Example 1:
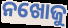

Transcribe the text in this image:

ନଖୋଜୁ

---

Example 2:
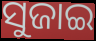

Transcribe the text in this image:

ସୁଜାଇ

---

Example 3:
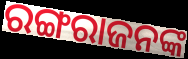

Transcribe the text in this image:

ରଙ୍ଗରାଜନଙ୍କ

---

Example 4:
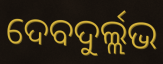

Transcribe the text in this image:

ଦେବଦୁର୍ଲ୍ଲଭ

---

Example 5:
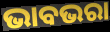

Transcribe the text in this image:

ଭାବଭରା